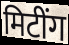
मिटींग